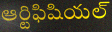
ఆర్టిఫిషియల్